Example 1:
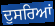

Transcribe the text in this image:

ਦੁਸਰਿਆਂ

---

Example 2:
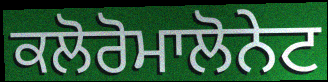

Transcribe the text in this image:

ਕਲੋਰੋਮਾਲੋਨੇਟ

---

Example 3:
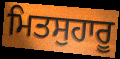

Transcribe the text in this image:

ਮਿਤਸੁਹਾਰੂ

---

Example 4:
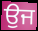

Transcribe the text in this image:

ਉਜ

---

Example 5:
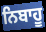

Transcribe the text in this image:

ਨਿਬਾਹੂ